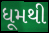
ધૂમથી